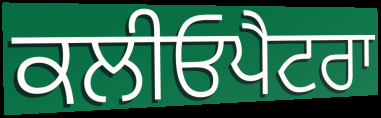
ਕਲੀਓਪੈਟਰਾ